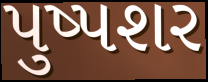
પુષ્પશર